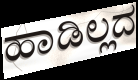
ಹಾಡಿಲ್ಲದ